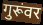
गुरूंवर